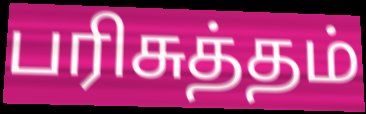
பரிசுத்தம்